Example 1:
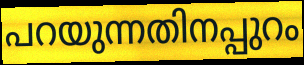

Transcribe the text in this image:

പറയുന്നതിനപ്പുറം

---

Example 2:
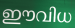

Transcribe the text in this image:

ഈവിധ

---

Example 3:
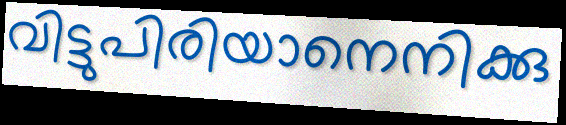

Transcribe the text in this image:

വിട്ടുപിരിയാനെനിക്കു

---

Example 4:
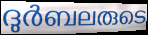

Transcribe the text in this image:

ദുർബലരുടെ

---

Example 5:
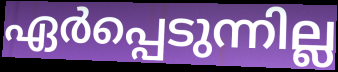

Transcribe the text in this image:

ഏർപ്പെടുന്നില്ല